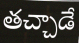
తచ్చాడే